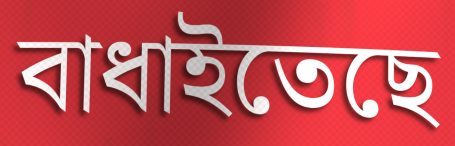
বাধাইতেছে